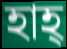
হাহ্